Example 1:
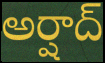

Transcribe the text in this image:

అర్షాద్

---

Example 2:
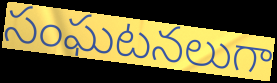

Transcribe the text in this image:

సంఘటనలుగా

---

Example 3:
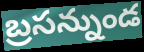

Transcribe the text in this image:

బ్రసన్నుండ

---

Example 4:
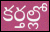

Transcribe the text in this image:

కర్తల్లో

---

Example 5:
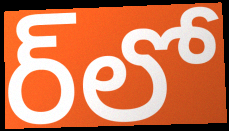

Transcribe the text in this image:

ర్‌లో